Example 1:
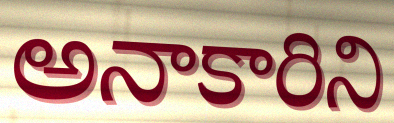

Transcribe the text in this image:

అనాకారిని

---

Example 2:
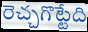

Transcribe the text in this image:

రెచ్చగొట్టేది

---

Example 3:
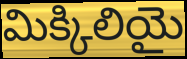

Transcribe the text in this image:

మిక్కిలియై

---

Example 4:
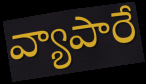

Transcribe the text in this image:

వ్యాపారే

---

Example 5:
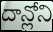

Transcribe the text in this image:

దాన్లోని